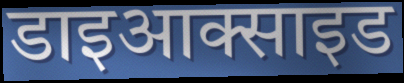
डाइआक्साइड